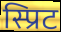
स्प्रिट